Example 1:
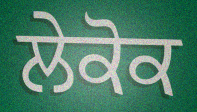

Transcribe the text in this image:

ਲੇਕੋਕ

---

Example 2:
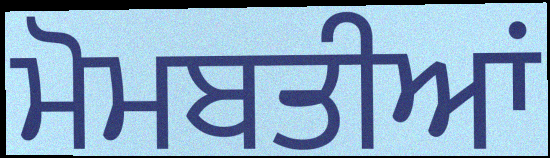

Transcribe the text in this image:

ਮੋਮਬਤੀਆਂ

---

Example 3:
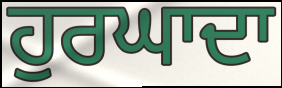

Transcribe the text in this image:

ਹੁਰਘਾਦਾ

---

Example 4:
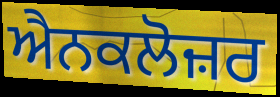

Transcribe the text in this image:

ਐਨਕਲੋਜ਼ਰ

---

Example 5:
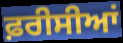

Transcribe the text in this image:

ਫ਼ਰੀਸੀਆਂ